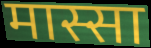
मास्सा